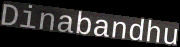
Dinabandhu